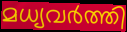
മധ്യവർത്തി